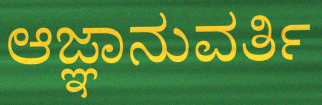
ಆಜ್ಞಾನುವರ್ತಿ